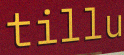
tillu